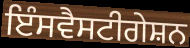
ਇੰਸਵੈਸਟੀਗੇਸ਼ਨ